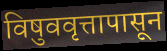
विषुववृत्तापासून